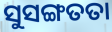
ସୁସଙ୍ଗତତା